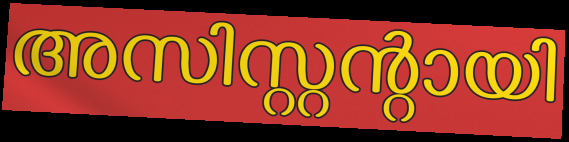
അസിസ്റ്റന്റായി